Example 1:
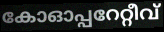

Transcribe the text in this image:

കോഓപ്പറേറ്റീവ്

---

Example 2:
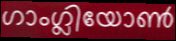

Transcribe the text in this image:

ഗാംഗ്ലിയോൺ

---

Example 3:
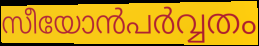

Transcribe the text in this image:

സീയോൻപർവ്വതം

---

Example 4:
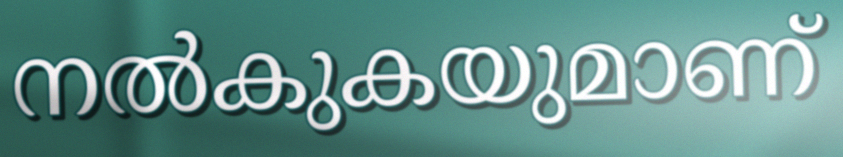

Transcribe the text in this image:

നൽകുകയുമാണ്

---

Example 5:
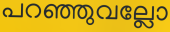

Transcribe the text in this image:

പറഞ്ഞുവല്ലോ